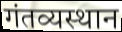
गंतव्यस्थान